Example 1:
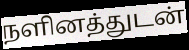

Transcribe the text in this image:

நளினத்துடன்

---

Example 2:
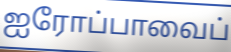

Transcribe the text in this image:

ஐரோப்பாவைப்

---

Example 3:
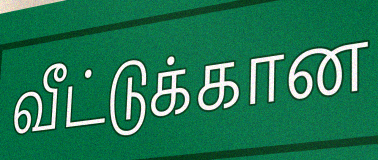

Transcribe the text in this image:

வீட்டுக்கான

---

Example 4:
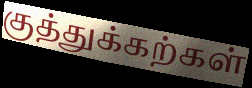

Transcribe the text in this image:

குத்துக்கற்கள்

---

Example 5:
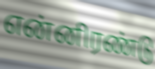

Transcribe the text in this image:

என்னிரண்டு